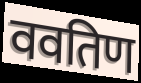
ववतिण